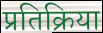
प्रतिक्रिया